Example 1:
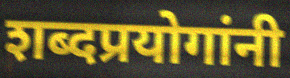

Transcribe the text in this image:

शब्दप्रयोगांनी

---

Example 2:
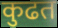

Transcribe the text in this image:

कुढत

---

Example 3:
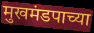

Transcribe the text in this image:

मुखमंडपाच्या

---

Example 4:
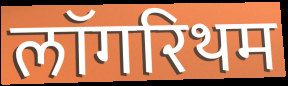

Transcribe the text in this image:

लॉगरिथम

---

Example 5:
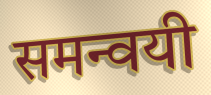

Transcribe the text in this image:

समन्वयी